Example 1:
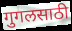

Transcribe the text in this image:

गुगलसाठी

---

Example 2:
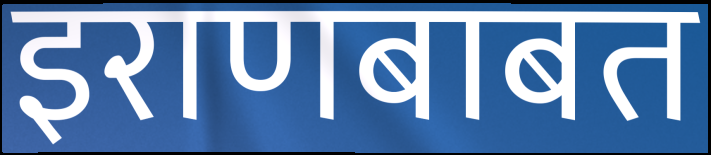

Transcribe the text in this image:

इराणबाबत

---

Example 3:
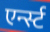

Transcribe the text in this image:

एर्न्स्ट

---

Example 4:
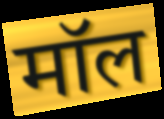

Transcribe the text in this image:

मॉल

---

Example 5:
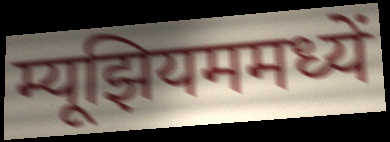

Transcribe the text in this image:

म्यूझियममध्यें